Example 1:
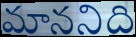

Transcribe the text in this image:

మాననిది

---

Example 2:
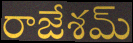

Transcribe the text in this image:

రాజేశమ్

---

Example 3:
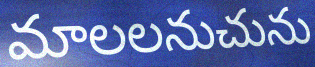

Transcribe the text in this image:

మాలలనుచును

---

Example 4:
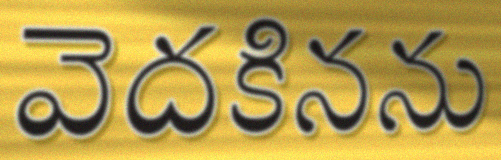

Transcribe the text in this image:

వెదకినను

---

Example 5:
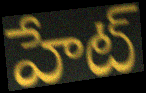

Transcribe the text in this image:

హేట్